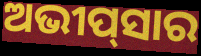
ଅଭୀପ୍‌ସାର